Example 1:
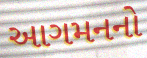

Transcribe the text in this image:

આગમનનો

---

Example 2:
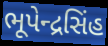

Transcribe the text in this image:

ભૂપેન્દ્રસિંહ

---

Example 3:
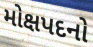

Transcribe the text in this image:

મોક્ષપદનો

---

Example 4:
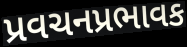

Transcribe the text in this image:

પ્રવચનપ્રભાવક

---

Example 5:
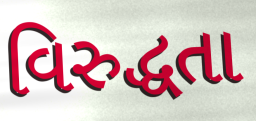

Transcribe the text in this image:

વિરુદ્ધતા